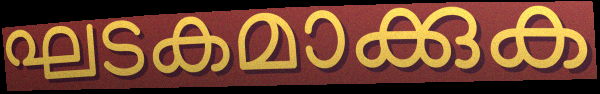
ഘടകമാക്കുക